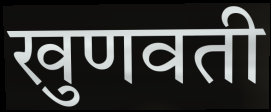
खुणवती